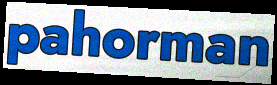
pahorman